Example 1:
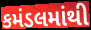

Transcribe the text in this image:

કમંડલમાંથી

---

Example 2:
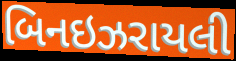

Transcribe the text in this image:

બિનઇઝરાયલી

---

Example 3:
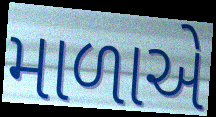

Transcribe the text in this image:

માળાએ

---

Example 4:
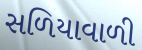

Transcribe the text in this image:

સળિયાવાળી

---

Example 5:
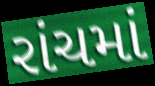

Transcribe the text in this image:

રાંચમાં